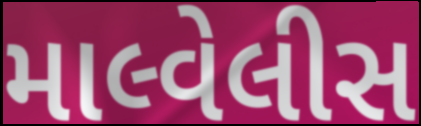
માલ્વેલીસ